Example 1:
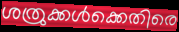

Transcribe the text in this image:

ശത്രുക്കൾക്കെതിരെ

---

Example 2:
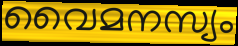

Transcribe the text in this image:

വൈമനസ്യം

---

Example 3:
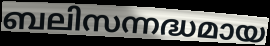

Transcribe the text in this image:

ബലിസന്നദ്ധമായ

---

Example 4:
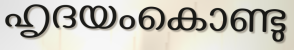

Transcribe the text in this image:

ഹൃദയംകൊണ്ടു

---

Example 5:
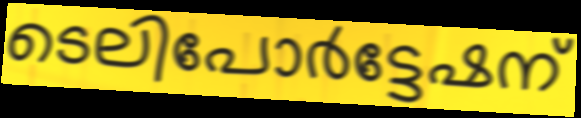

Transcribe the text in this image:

ടെലിപോർട്ടേഷന്